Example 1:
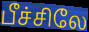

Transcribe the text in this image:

பீச்சிலே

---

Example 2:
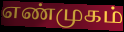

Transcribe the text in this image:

எண்முகம்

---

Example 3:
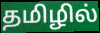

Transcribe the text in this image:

தமிழில்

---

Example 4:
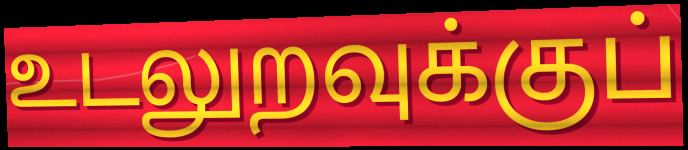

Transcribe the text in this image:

உடலுறவுக்குப்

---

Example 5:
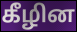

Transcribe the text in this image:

கீழின